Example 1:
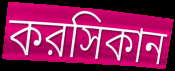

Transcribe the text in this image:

করসিকান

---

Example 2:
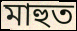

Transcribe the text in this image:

মাহুত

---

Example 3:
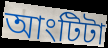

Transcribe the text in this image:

আংটিটা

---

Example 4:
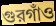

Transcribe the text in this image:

গুরগাঁও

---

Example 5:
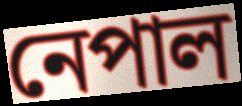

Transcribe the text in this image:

নেপাল